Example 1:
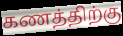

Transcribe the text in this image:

கணத்திற்கு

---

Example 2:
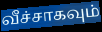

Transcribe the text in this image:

வீச்சாகவும்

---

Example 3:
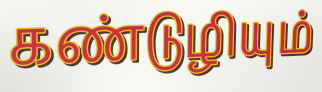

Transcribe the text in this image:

கண்டுழியும்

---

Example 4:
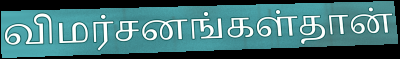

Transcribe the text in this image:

விமர்சனங்கள்தான்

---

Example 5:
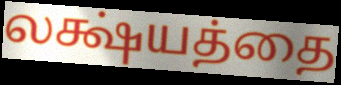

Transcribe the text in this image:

லக்ஷ்யத்தை